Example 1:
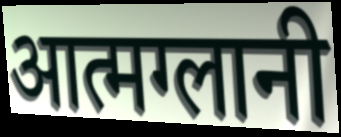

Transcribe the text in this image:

आत्मग्लानी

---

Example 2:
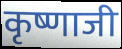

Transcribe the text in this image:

कृष्णाजी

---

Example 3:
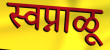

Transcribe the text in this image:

स्वप्नाळू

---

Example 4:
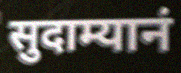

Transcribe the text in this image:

सुदाम्यानं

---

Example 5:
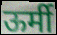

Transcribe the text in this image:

ऊर्मी